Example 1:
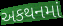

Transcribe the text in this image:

અકથનમાં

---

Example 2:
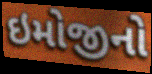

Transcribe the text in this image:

ઇમોજીનો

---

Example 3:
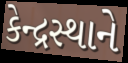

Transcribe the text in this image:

કેન્દ્રસ્થાને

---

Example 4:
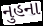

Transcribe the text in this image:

નુહના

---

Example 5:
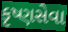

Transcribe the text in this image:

કૃષ્ણસેવા